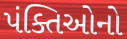
પંક્તિઓનો